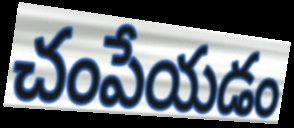
చంపేయడం